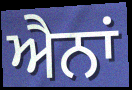
ਐਨਾਂ